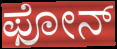
ಫೋನ್